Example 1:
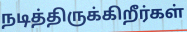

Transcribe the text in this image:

நடித்திருக்கிறீர்கள்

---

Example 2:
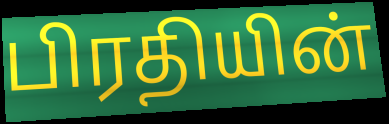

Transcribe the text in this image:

பிரதியின்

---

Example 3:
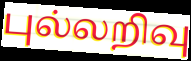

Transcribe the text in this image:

புல்லறிவு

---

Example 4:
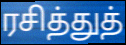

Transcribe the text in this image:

ரசித்துத்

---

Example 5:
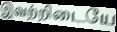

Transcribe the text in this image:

இவற்றிடையே